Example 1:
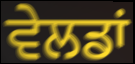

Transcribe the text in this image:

ਵੇਲਡਾਂ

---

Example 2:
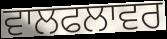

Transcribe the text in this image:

ਵਾਲਫਲਾਵਰ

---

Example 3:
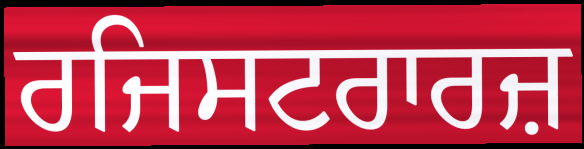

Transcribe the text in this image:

ਰਜਿਸਟਰਾਰਜ਼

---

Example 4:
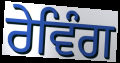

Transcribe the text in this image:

ਰੇਵਿੰਗ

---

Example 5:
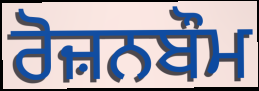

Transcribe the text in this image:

ਰੋਜ਼ਨਬੌਮ